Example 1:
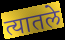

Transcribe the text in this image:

त्‍यातले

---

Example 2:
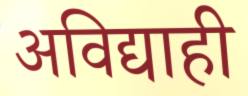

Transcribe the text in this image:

अविद्याही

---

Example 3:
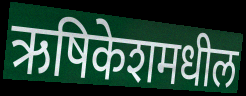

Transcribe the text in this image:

ऋषिकेशमधील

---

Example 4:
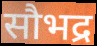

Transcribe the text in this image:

सौभद्र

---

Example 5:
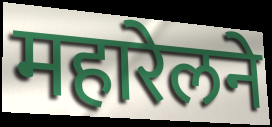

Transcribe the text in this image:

महारेलने